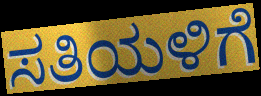
ಸತಿಯಳಿಗೆ